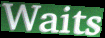
Waits